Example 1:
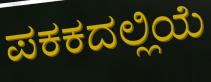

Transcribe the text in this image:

ಪಕಕದಲ್ಲಿಯೆ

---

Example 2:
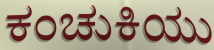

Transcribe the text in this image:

ಕಂಚುಕಿಯು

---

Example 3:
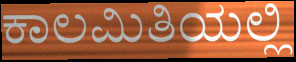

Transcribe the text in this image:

ಕಾಲಮಿತಿಯಲ್ಲಿ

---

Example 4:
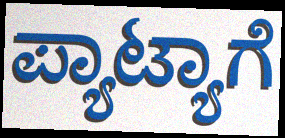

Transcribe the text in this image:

ಪ್ಯಾಟ್ಯಾಗೆ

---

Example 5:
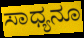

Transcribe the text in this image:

ಸಾಧ್ಯನೂ